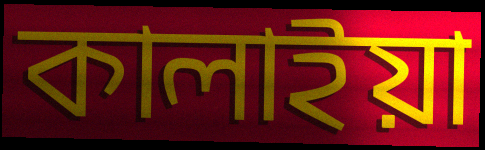
কালাইয়া